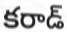
కరాడ్